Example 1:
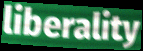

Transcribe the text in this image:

liberality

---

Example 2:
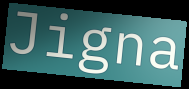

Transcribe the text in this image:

Jigna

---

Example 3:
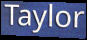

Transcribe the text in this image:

Taylor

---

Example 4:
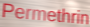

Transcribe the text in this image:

Permethrin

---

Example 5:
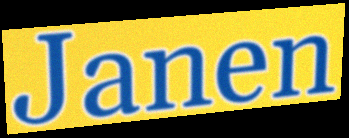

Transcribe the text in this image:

Janen